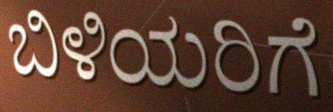
ಬಿಳಿಯರಿಗೆ